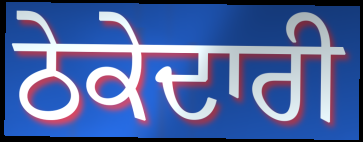
ਠੇਕੇਦਾਰੀ